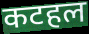
कटहल